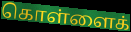
கொள்ளைக்